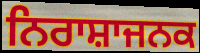
ਨਿਰਾਸ਼ਾਜਨਕ